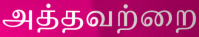
அத்தவற்றை